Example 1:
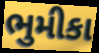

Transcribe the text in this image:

ભુમીકા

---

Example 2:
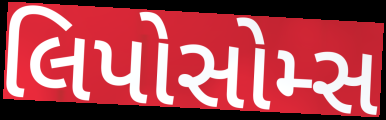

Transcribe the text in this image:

લિપોસોમ્સ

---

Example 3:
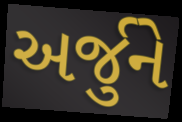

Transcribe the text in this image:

અર્જુને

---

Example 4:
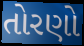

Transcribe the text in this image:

તોરણો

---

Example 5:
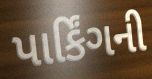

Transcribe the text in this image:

પાર્કિંગની